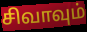
சிவாவும்